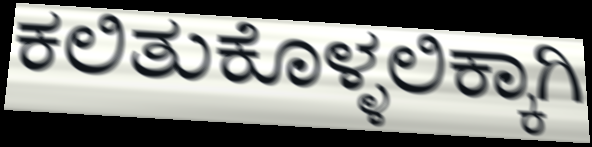
ಕಲಿತುಕೊಳ್ಳಲಿಕ್ಕಾಗಿ